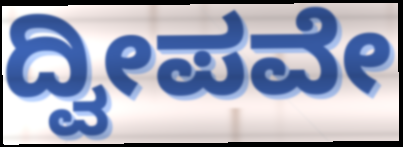
ದ್ವೀಪವೇ